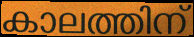
കാലത്തിന്